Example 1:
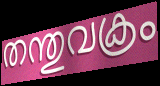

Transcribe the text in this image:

തന്തുവക്രം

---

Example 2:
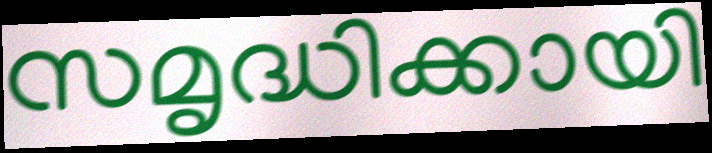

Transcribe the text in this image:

സമൃദ്ധിക്കായി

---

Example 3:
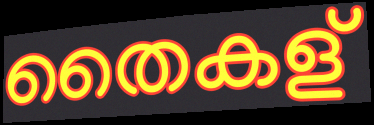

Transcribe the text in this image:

തൈകള്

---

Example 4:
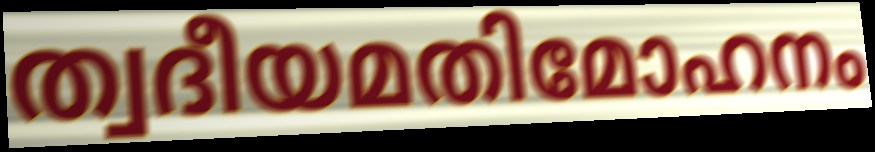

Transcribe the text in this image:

ത്വദീയമതിമോഹനം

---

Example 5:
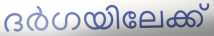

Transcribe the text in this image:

ദർഗയിലേക്ക്